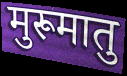
मुरूमातु